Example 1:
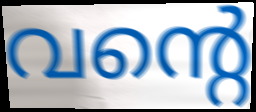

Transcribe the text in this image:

വന്റെ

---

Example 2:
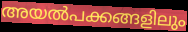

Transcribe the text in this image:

അയൽപക്കങ്ങളിലും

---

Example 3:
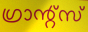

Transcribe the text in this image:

ഗ്രാന്റ്സ്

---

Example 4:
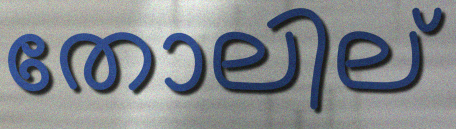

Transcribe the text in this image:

തോലില്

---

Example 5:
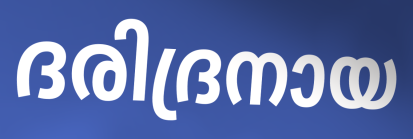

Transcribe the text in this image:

ദരിദ്രനായ